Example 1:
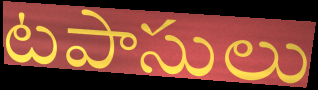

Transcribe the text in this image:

టపాసులు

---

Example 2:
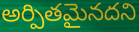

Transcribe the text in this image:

అర్పితమైనదని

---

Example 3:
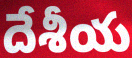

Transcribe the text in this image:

దేశీయ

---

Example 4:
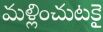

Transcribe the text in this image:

మళ్లించుటకై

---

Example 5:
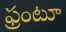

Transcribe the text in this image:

ఫ్రంటూ